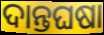
ଦାନ୍ତଘଷା